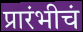
प्रारंभीचं